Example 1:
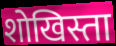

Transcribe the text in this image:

शोखिस्ता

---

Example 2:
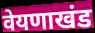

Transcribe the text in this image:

वेयणाखंड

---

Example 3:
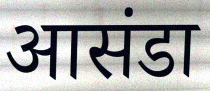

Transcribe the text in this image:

आसंडा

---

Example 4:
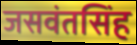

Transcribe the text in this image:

जसवंतसिंह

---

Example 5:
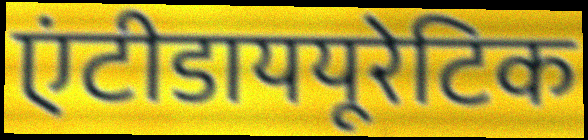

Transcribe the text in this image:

एंटीडाययूरेटिक